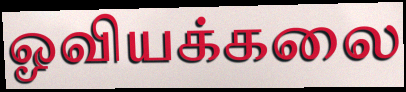
ஓவியக்கலை